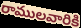
రాములవారికి